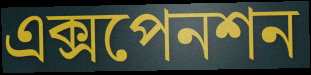
এক্সপেনশন